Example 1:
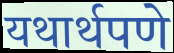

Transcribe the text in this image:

यथार्थपणे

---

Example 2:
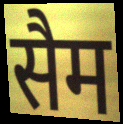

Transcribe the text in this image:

सैम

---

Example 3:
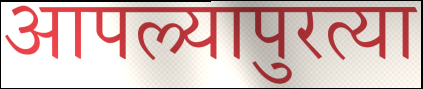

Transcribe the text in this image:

आपल्यापुरत्या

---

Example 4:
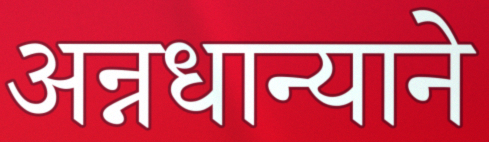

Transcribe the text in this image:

अन्नधान्याने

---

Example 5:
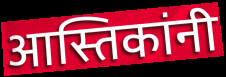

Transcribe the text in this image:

आस्तिकांनी